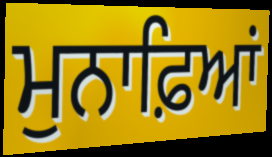
ਮੁਨਾਫ਼ਿਆਂ